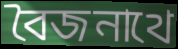
বৈজনাথে